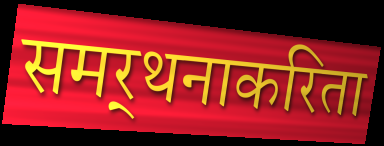
समर्थनाकरिता